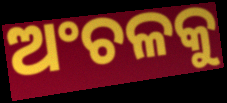
ଅଂଚଳକୁ